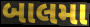
બાલમા